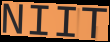
NIIT